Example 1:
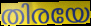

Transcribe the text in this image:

തിരയേ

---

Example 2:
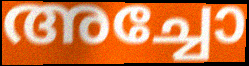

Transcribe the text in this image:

അച്ചോ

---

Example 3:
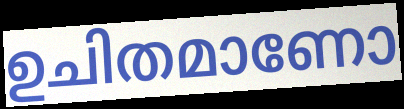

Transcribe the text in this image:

ഉചിതമാണോ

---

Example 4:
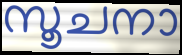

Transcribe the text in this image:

സൂചനാ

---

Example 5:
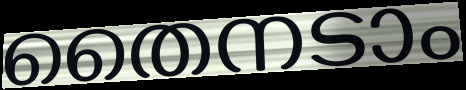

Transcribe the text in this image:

തൈനടാം